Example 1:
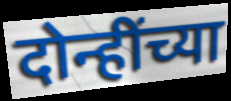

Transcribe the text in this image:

दोन्हींच्या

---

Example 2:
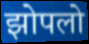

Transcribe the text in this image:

झोपलो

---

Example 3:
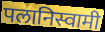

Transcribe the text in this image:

पलानिस्वामी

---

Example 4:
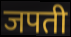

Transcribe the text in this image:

जपती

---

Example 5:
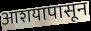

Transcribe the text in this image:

आशयापासून